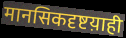
मानसिकदृष्टय़ाही